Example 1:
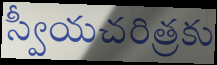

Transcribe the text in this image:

స్వీయచరిత్రకు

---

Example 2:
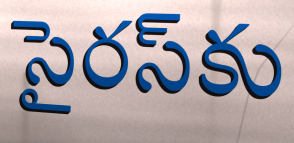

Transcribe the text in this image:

సైరస్‌కు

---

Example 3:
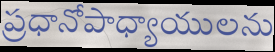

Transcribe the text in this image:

ప్రధానోపాధ్యాయులను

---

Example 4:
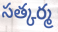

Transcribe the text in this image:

సత్కర్మ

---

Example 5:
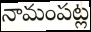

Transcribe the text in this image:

నామంపట్ల